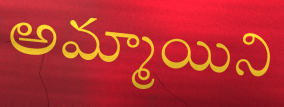
అమ్మాయిని